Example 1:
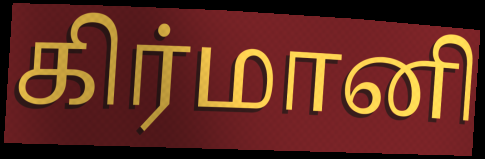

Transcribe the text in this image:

கிர்மானி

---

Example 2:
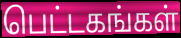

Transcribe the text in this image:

பெட்டகங்கள்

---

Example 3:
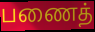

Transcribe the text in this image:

பணைத்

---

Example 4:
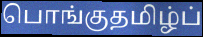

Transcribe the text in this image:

பொங்குதமிழ்ப்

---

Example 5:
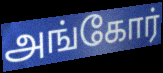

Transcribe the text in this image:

அங்கோர்